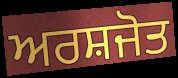
ਅਰਸ਼ਜੋਤ